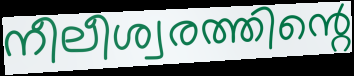
നീലീശ്വരത്തിന്റെ